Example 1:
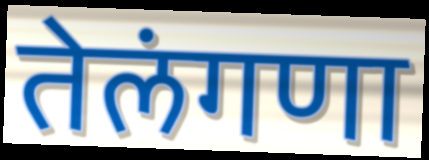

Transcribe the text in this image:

तेलंगणा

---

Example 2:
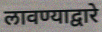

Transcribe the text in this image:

लावण्याद्वारे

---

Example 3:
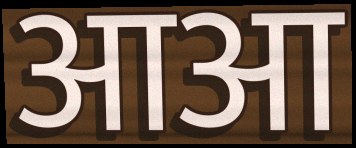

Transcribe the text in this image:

आआ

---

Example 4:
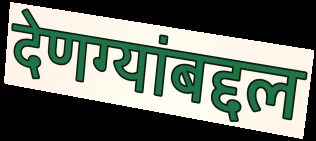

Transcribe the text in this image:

देणग्यांबद्दल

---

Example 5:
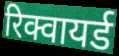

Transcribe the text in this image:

रिक्वायर्ड